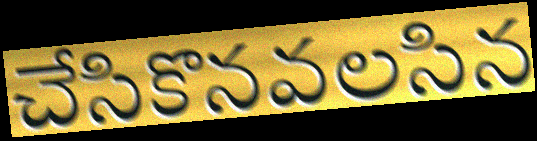
చేసికొనవలసిన